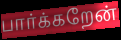
பார்க்கறேன்